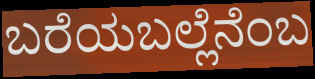
ಬರೆಯಬಲ್ಲೆನೆಂಬ